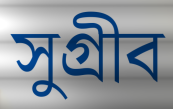
সুগ্রীব